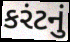
કરંટનું